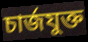
চার্জযুক্ত